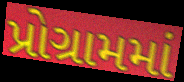
પ્રોગ્રામમાં